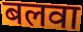
बलवा